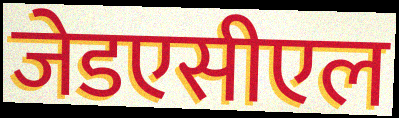
जेडएसीएल